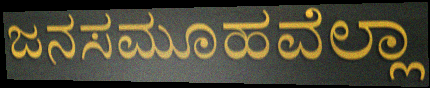
ಜನಸಮೂಹವೆಲ್ಲಾ